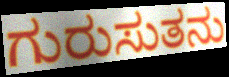
ಗುರುಸುತನು